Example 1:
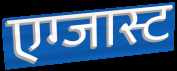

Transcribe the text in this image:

एग्जास्ट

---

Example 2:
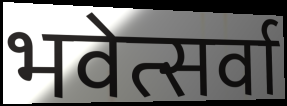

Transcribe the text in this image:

भवेत्सर्वा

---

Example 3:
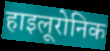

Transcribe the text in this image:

हाइलूरोनिक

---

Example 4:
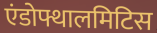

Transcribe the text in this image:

एंडोफ्थालमिटिस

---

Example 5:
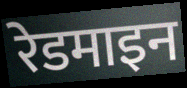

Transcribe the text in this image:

रेडमाइन